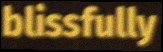
blissfully